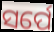
ସର୍ପେ